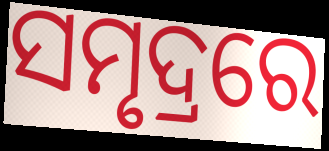
ସମୃଦ୍ରରେ